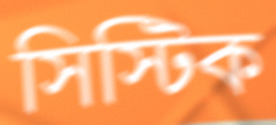
সিস্টিক